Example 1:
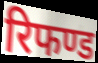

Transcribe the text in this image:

रिफण्ड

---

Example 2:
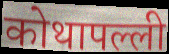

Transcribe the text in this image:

कोथापल्ली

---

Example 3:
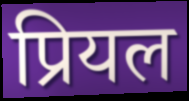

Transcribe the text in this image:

प्रियल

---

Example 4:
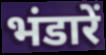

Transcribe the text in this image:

भंडारें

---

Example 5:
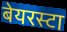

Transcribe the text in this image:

बेयरस्टा